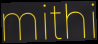
mithi